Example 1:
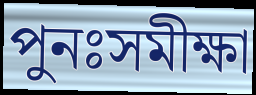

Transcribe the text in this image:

পুনঃসমীক্ষা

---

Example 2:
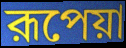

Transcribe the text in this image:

রূপেয়া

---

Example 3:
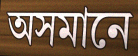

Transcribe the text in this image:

অসমানে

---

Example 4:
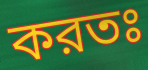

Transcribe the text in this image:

করতঃ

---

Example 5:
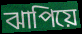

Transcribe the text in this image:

ঝাপিয়ে